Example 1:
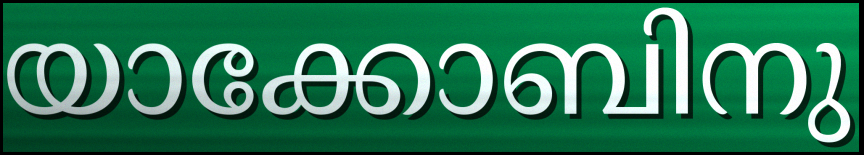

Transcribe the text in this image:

യാക്കോബിനു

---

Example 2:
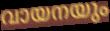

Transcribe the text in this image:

വായനയും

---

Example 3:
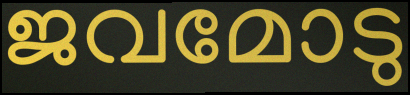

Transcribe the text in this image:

ജവമോടു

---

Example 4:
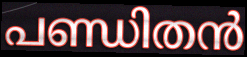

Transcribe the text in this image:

പണ്ഡിതൻ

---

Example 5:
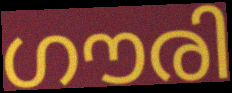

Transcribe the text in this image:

ഗൗരി